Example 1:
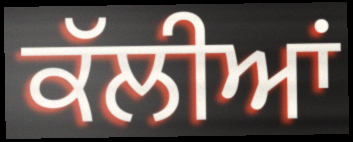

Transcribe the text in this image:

ਕੱਲੀਆਂ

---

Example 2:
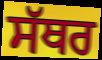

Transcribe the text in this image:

ਸੱਥਰ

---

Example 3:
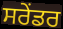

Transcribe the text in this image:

ਸਰੇਂਡਰ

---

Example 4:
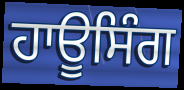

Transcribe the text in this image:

ਹਾਊਸਿੰਗ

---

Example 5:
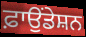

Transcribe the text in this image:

ਫ਼ਾਉਂਡੇਸ਼ਨ